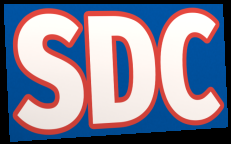
SDC